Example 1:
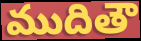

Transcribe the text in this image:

ముదితౌ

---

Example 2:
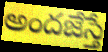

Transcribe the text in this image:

అందజేస్తే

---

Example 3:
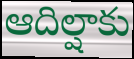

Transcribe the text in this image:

ఆదిల్షాకు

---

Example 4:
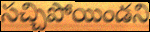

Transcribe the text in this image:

సచ్చిపోయిండని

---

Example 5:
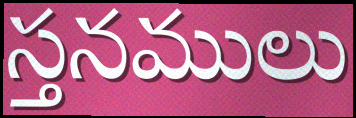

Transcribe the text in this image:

స్తనములు